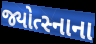
જ્યોત્સ્નાના